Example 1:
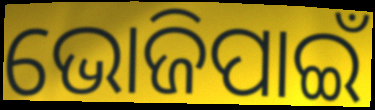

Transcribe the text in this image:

ଭୋଜିପାଇଁ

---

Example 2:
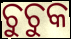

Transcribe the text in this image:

ଚୁଚୁକ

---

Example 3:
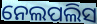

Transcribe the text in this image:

ନେଲପଲିସ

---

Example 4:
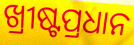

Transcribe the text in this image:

ଖ୍ରୀଷ୍ଟପ୍ରଧାନ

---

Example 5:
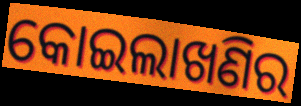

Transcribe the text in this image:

କୋଇଲାଖଣିର